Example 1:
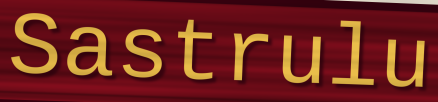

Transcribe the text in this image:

Sastrulu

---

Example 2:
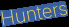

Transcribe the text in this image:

Hunters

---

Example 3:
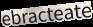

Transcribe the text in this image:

ebracteate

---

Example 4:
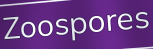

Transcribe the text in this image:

Zoospores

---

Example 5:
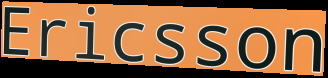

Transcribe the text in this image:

Ericsson